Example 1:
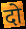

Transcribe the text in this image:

दो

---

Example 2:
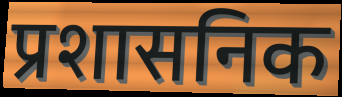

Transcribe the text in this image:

प्रशासनिक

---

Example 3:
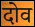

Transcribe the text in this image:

दोव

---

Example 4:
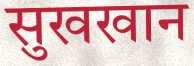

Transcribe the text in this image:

सुखखान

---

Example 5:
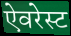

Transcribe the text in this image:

ऐवरेस्ट